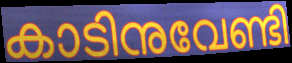
കാടിനുവേണ്ടി